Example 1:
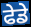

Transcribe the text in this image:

ਫੇਡੇ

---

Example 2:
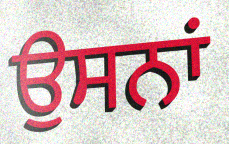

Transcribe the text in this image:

ਉਸਨਾਂ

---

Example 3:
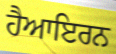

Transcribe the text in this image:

ਹੈਆਇਰਨ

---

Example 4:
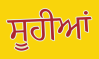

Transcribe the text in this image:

ਸੂਹੀਆਂ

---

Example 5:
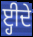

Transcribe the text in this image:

ੲ੍ਹੀਦੇ